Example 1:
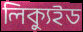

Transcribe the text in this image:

লিক্যুইড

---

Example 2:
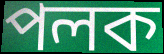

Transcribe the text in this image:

পলক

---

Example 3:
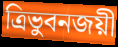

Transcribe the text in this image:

ত্রিভুবনজয়ী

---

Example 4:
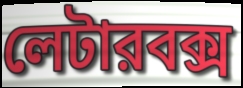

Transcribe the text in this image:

লেটারবক্স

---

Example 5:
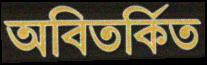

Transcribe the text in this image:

অবিতর্কিত